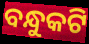
ବନ୍ଧୁକଟି